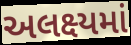
અલક્ષ્યમાં